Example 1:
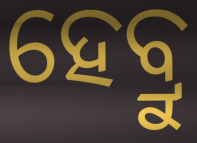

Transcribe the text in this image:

ହେବ୍ରୁ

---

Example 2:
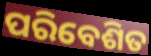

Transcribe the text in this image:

ପରିବେଶିତ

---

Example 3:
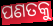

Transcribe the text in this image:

ପଣତକୁ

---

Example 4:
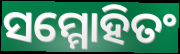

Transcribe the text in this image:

ସମ୍ମୋହିତଂ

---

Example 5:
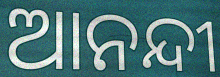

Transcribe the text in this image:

ଆନନ୍ଦୀ